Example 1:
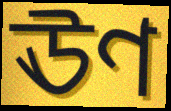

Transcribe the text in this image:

ঊণ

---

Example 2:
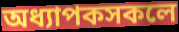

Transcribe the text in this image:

অধ্যাপকসকলে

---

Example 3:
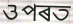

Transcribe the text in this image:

ওপৰত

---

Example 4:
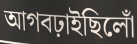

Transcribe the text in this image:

আগবঢ়াইছিলোঁ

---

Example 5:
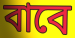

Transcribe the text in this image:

বাবে